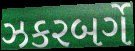
ઝકરબર્ગે